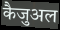
कैजुअल